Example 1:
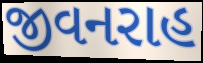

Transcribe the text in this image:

જીવનરાહ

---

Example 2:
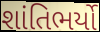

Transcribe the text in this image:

શાંતિભર્યો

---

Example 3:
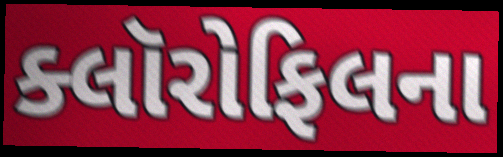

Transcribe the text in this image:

ક્લૉરોફિલના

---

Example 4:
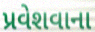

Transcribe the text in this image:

પ્રવેશવાના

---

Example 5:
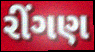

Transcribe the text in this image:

રીંગણ